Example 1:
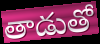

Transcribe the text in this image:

తాడుతో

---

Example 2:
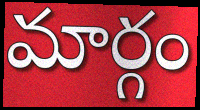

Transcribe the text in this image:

మార్గం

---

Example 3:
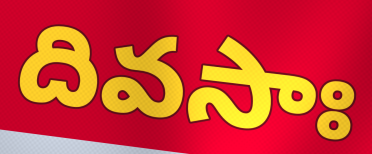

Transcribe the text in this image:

దివసాః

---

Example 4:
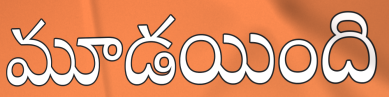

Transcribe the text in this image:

మూడయింది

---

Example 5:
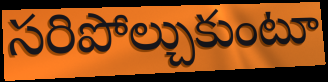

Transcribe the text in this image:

సరిపోల్చుకుంటూ